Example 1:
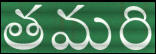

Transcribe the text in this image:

తమరి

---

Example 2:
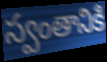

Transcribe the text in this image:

స్వంతానికి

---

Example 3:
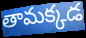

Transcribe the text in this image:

తామక్కడ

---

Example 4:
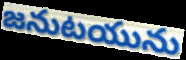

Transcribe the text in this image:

జనుటయును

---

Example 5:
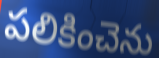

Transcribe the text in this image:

పలికించెను